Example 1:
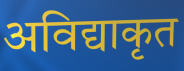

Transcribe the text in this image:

अविद्याकृत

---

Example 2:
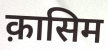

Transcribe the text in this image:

क़ासिम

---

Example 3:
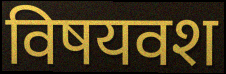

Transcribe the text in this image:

विषयवश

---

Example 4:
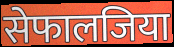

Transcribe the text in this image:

सेफालजिया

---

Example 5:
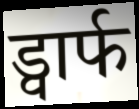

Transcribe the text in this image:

ड्वार्फ